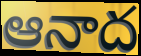
ఆనాద